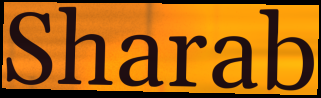
Sharab